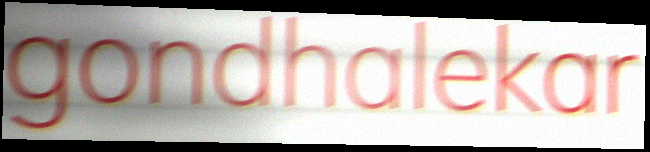
gondhalekar